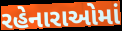
રહેનારાઓમાં